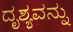
ದೃಶ್ಯವನ್ನು